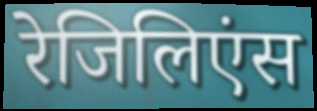
रेजिलिएंस